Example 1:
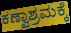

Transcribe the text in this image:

ಕಣ್ವಾಶ್ರಮಕ್ಕೆ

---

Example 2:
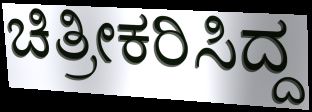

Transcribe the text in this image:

ಚಿತ್ರೀಕರಿಸಿದ್ದ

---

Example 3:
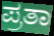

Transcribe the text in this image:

ಪ್ರತಾ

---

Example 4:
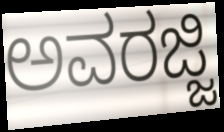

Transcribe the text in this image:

ಅವರಜ್ಜಿ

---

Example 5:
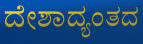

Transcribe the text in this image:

ದೇಶಾದ್ಯಂತದ